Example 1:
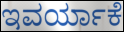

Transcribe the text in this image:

ಇವರ್ಯಾಕೆ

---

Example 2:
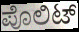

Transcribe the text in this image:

ಪೊಲಿಟ್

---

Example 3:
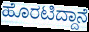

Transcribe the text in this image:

ಹೊರಟಿದ್ದಾನೆ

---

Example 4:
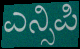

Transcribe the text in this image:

ಎನ್ಸಿಪಿ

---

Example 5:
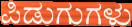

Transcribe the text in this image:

ಪಿಡುಗುಗಳು